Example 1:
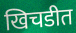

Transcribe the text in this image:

खिचडीत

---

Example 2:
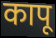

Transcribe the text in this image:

कापू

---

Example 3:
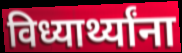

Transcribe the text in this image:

विध्यार्थ्यांना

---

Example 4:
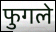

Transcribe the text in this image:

फुगले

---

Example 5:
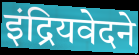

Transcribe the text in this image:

इंद्रियवेदने